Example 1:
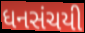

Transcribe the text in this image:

ધનસંચયી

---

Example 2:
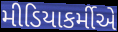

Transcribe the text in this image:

મીડિયાકર્મીએ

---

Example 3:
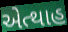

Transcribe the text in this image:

એત્થાહ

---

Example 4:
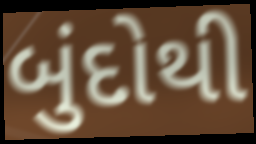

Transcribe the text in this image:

બુંદોથી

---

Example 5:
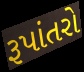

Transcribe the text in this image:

રૂપાંતરો